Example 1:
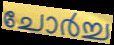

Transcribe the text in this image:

ചോർച്ച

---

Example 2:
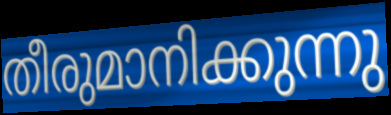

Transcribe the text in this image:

തീരുമാനിക്കുന്നു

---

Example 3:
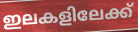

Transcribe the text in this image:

ഇലകളിലേക്ക്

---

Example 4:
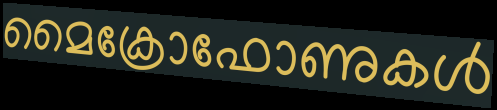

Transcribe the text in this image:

മൈക്രോഫോണുകൾ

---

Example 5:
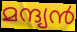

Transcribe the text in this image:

മന്ദ്യൻ